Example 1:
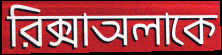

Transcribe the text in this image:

রিক্সাঅলাকে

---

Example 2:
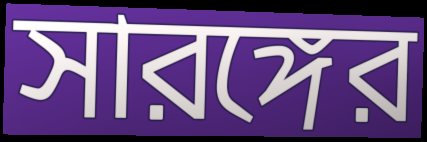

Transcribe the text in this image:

সারঙ্গের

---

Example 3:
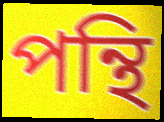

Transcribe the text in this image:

পন্থি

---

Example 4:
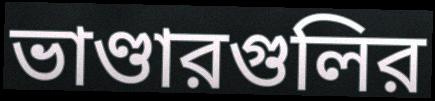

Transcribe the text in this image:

ভাণ্ডারগুলির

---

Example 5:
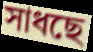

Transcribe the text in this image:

সাধছে